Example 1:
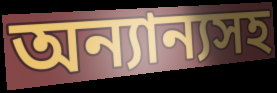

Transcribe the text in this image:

অন্যান্যসহ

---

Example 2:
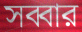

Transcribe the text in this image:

সব্বার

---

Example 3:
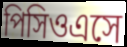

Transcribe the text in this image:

পিসিওএসে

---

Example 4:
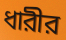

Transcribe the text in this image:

ধারীর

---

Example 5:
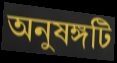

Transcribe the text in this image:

অনুষঙ্গটি